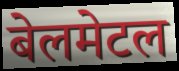
बेलमेटल